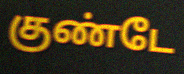
குண்டே